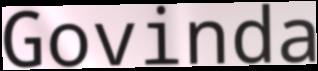
Govinda